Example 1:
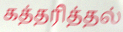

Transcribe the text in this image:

கத்தரித்தல்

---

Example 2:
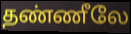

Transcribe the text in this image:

தண்ணீலே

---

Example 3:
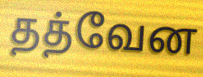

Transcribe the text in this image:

தத்வேன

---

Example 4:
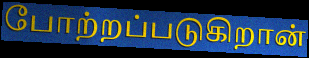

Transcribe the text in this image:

போற்றப்படுகிறான்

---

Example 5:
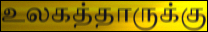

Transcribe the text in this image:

உலகத்தாருக்கு